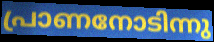
പ്രാണനോടിന്നു